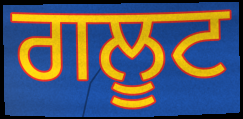
ਗਲੂਟ